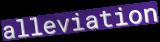
alleviation